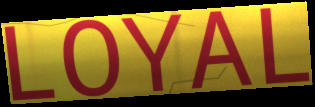
LOYAL